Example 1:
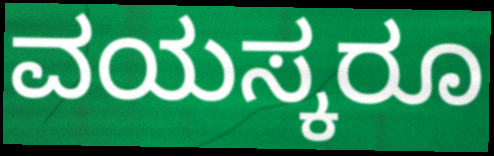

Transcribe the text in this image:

ವಯಸ್ಕರೂ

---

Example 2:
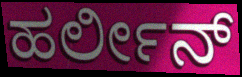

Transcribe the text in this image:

ಹರ್ಲೀನ್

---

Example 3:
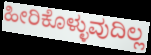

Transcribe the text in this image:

ಹೀರಿಕೊಳ್ಳುವುದಿಲ್ಲ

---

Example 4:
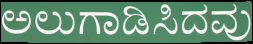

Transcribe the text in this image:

ಅಲುಗಾಡಿಸಿದವು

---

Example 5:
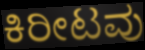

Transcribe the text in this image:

ಕಿರೀಟವು